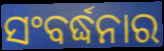
ସଂବର୍ଦ୍ଧନାର